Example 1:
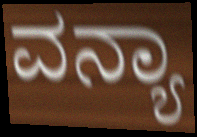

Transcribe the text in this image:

ವನ್ಯಾ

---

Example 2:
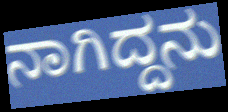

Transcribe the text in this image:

ನಾಗಿದ್ದನು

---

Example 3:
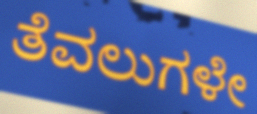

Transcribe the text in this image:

ತೆವಲುಗಳೇ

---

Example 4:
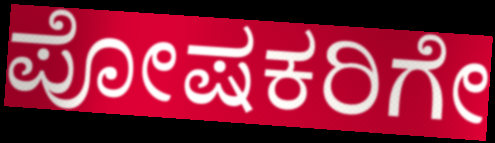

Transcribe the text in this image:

ಪೋಷಕರಿಗೇ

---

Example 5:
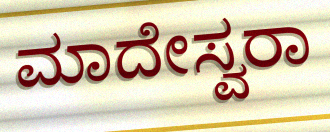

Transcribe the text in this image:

ಮಾದೇಸ್ವರಾ